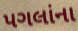
પગલાંના